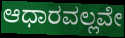
ಆಧಾರವಲ್ಲವೇ